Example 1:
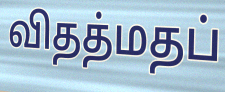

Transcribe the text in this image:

விதத்மதப்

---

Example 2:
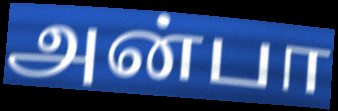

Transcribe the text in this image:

அன்பா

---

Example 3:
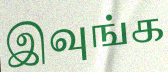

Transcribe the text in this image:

இவுங்க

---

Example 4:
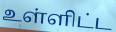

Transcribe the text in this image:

உள்ளிட்ட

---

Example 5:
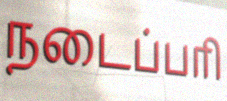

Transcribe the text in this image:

நடைப்பரி